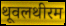
थूवलथीरम